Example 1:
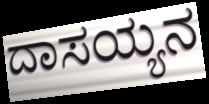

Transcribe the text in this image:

ದಾಸಯ್ಯನ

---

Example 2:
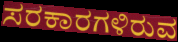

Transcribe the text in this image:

ಸರಕಾರಗಳಿರುವ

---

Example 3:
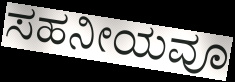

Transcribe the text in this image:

ಸಹನೀಯವೂ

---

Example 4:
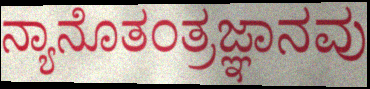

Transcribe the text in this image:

ನ್ಯಾನೊತಂತ್ರಜ್ಞಾನವು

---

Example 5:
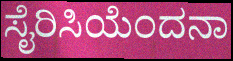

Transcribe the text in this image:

ಸೈರಿಸಿಯೆಂದನಾ